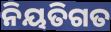
ନିୟତିଗତ